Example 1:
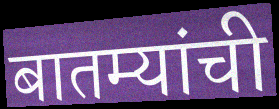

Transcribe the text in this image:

बातम्यांची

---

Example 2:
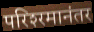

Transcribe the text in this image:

परिश्रमानंतर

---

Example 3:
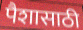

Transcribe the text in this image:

पैशासाठी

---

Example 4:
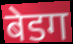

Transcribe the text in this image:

बेडग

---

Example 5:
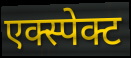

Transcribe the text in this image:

एक्स्पेक्ट